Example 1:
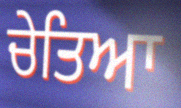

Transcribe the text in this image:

ਚੇਤਿਆ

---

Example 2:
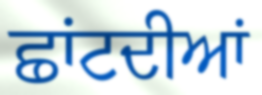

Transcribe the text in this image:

ਛਾਂਟਦੀਆਂ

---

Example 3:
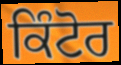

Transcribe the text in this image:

ਕਿੰਟੋਰ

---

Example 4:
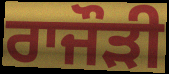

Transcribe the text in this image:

ਰਾਜੌੜੀ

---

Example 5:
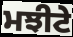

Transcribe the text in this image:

ਮਝੀਟੇ